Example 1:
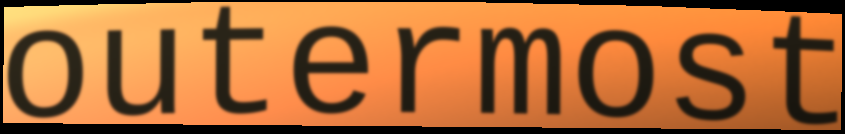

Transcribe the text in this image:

outermost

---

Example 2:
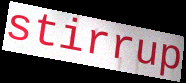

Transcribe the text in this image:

stirrup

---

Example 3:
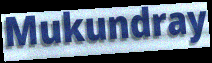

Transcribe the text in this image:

Mukundray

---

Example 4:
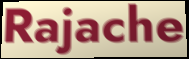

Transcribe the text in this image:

Rajache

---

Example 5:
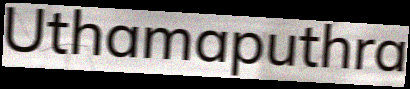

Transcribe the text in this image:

Uthamaputhra